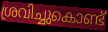
ശ്രവിച്ചുകൊണ്ട്